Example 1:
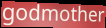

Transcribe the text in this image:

godmother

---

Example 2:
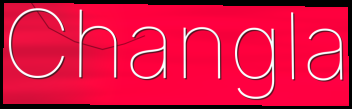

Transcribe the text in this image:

Changla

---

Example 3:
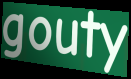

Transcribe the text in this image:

gouty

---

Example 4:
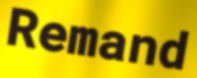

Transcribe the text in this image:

Remand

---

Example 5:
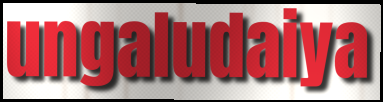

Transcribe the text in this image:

ungaludaiya